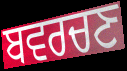
ਬਵਰਚਣ